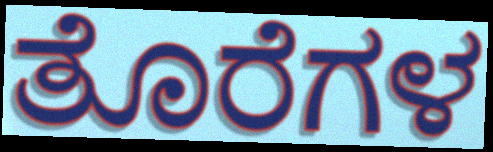
ತೊರೆಗಳ